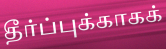
தீர்ப்புக்காகக்